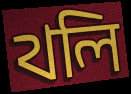
থলি